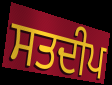
ਸਤਦੀਪ